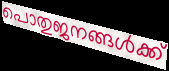
പൊതുജനങ്ങൾക്ക്